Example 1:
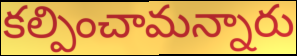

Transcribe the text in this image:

కల్పించామన్నారు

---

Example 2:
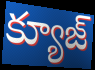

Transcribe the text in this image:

క్యూజ్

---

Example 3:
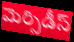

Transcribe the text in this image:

మెర్సిడీస్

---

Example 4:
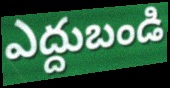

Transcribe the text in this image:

ఎద్దుబండి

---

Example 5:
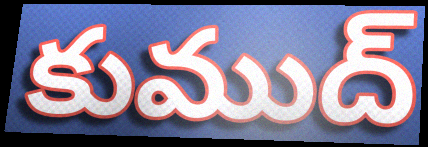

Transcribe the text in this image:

కుముద్